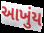
આખુંય